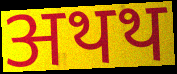
अथथ